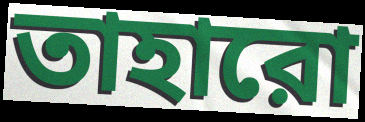
তাহারো